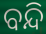
ବନ୍ଦି